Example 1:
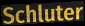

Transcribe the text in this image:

Schluter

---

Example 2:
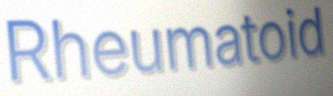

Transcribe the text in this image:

Rheumatoid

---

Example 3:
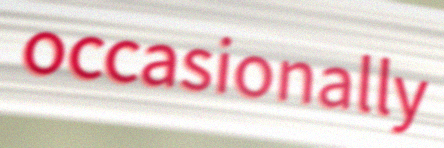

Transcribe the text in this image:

occasionally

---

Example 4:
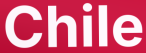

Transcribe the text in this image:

Chile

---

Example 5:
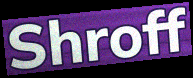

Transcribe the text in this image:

Shroff